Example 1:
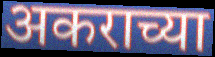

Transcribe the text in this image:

अकराच्या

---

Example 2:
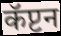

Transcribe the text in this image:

कॅप्टन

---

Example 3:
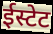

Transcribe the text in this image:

ईस्टेट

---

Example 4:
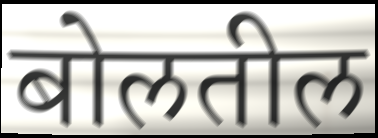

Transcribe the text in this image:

बोलतील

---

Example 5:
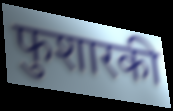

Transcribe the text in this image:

फुशारकी